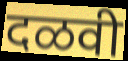
दळवी